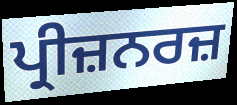
ਪ੍ਰੀਜ਼ਨਰਜ਼